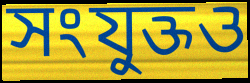
সংযুক্তও